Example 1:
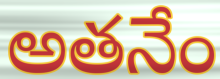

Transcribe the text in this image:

అతనేం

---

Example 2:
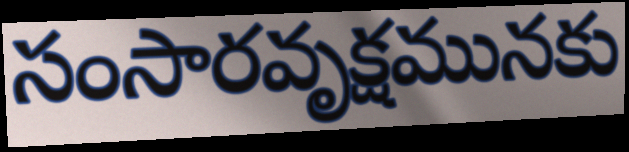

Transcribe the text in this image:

సంసారవృక్షమునకు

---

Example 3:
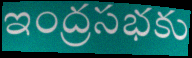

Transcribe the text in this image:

ఇంద్రసభకు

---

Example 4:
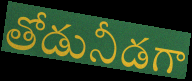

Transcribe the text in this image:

తోడునీడగా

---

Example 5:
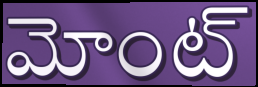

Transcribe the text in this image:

మోంట్